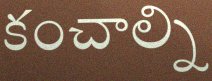
కంచాల్ని